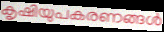
കൃഷിയുപകരണങ്ങൾ